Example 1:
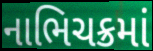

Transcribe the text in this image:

નાભિચક્રમાં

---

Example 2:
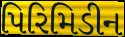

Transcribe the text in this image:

પિરિમિડીન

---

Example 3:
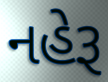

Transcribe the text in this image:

નહેરૂ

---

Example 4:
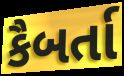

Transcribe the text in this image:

કૈબર્તા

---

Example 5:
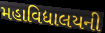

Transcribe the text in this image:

મહાવિદ્યાલયની